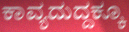
ಕಾವ್ಯದುದ್ದಕ್ಕೂ